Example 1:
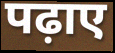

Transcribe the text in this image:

पढ़ाए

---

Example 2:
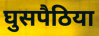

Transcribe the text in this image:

घुसपैठिया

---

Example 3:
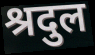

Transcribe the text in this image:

श्रदुल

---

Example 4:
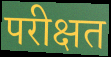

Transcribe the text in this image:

परीक्षत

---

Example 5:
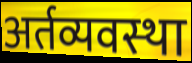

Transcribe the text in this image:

अर्तव्यवस्था